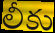
లీకు